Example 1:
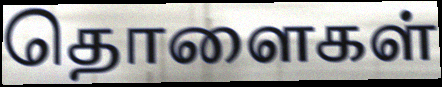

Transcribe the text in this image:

தொளைகள்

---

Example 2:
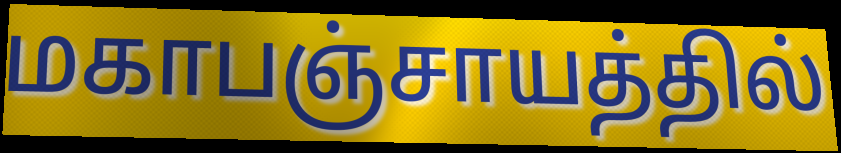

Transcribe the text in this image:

மகாபஞ்சாயத்தில்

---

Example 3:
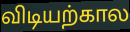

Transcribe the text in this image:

விடியற்கால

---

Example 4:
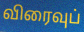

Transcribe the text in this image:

விரைவுப்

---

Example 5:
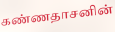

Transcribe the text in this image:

கண்ணதாசனின்